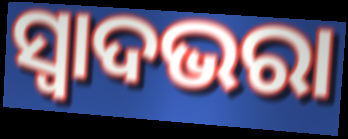
ସ୍ଵାଦଭରା